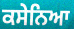
ਕਸੇਨਿਆ